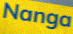
Nanga